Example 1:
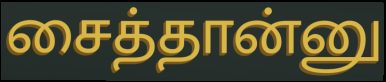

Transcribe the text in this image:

சைத்தான்னு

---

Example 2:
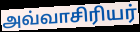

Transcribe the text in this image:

அவ்வாசிரியர்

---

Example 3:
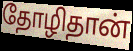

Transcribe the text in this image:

தோழிதான்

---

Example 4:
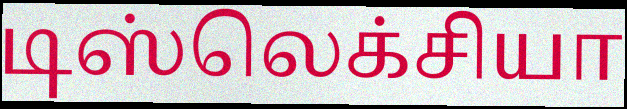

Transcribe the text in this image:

டிஸ்லெக்சியா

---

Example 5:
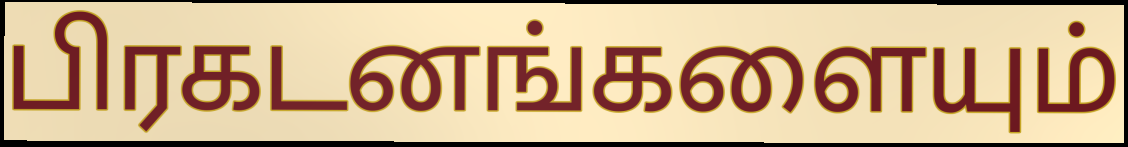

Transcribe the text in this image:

பிரகடனங்களையும்